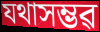
যথাসম্ভৱ